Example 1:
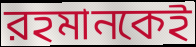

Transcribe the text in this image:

রহমানকেই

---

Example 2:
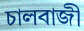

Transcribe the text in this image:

চালবাজী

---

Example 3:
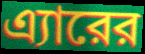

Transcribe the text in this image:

এ্যারের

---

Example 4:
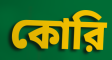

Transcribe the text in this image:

কোরি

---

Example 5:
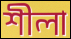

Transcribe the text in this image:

শীলা